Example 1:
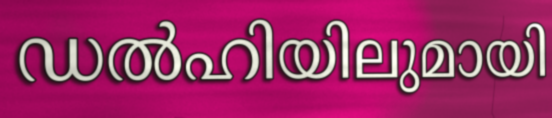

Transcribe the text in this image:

ഡൽഹിയിലുമായി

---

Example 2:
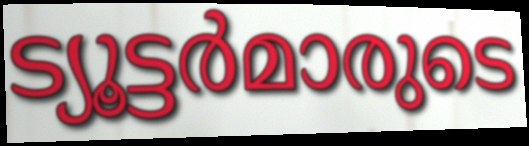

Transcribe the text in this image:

ട്യൂട്ടർമാരുടെ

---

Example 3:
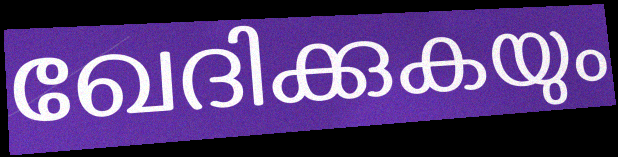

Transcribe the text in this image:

ഖേദിക്കുകയും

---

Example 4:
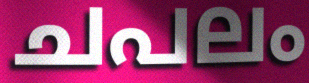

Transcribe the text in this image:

ചപലം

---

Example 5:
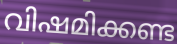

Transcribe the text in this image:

വിഷമിക്കണ്ട